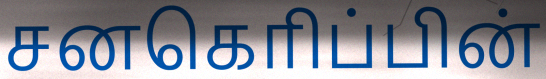
சனகெரிப்பின்